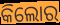
କିଲୋର